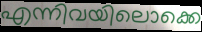
എന്നിവയിലൊക്കെ